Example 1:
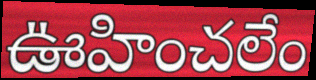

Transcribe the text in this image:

ఊహించలేం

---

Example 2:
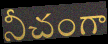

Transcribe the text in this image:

నీచంగా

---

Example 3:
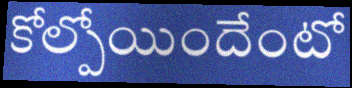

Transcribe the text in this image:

కోల్పోయిందేంటో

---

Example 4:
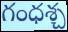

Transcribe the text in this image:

గంధశ్చ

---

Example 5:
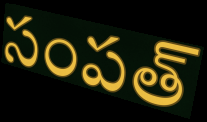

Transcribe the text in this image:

సంపత్